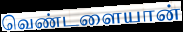
வெண்டளையான்